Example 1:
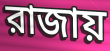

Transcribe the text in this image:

রাজায়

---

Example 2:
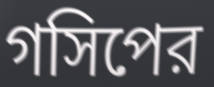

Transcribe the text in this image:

গসিপের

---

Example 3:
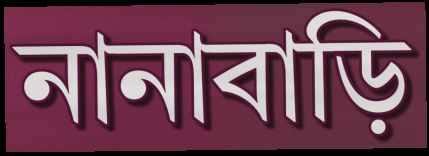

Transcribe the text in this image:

নানাবাড়ি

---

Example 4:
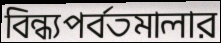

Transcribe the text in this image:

বিন্ধ্যপর্বতমালার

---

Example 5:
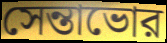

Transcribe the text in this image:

সেন্তাভোর